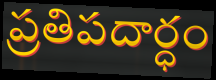
ప్రతిపదార్ధం